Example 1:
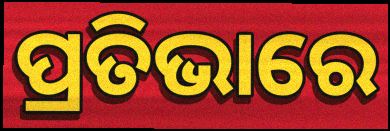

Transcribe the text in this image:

ପ୍ରତିଭାରେ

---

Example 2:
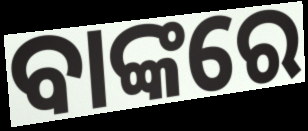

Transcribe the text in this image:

ବାଙ୍କରେ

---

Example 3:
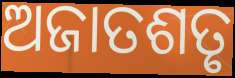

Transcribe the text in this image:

ଅଜାତଶତୃ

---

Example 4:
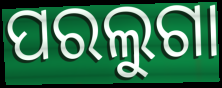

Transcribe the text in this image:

ପରଲୁଗା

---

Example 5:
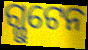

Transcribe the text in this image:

ଗ୍ଲୁଟେନ